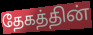
தேகத்தின்